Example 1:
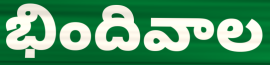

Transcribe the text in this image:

భిందివాల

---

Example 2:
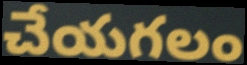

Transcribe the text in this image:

చేయగలం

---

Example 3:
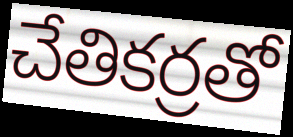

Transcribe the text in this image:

చేతికర్రతో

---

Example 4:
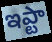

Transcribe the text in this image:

ఇప్టా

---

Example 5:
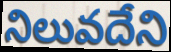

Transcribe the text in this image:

నిలువదేని